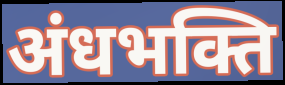
अंधभक्ति